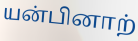
யன்பினாற்